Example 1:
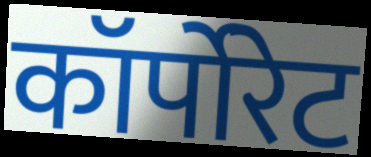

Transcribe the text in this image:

कॉर्पोरेट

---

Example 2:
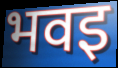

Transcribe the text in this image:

भवइ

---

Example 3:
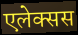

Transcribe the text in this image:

एलेक्सस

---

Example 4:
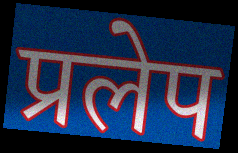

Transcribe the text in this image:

प्रलेप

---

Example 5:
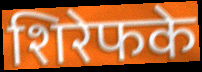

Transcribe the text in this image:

शिरेफके